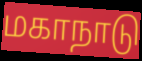
மகாநாடு